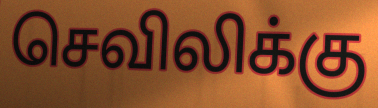
செவிலிக்கு